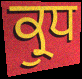
ਕ੍ਰੁਧ